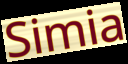
Simia